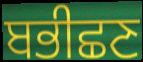
ਬਭੀਛਣ